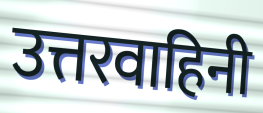
उत्तरवाहिनी